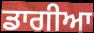
ਡਾਗੀਆ